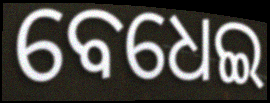
ବେଧେଇ